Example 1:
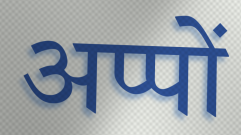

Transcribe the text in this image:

अप्पों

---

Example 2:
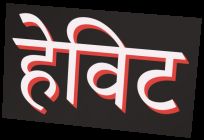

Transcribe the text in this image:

हेविट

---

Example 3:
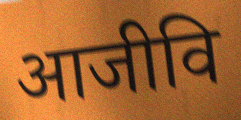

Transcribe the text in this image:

आजीवि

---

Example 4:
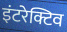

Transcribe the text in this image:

इंटरेक्टिव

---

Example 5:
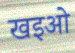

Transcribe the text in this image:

खइओ